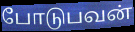
போடுபவன்